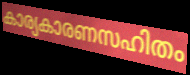
കാര്യകാരണസഹിതം